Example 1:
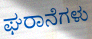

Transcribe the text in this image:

ಘರಾನೆಗಳು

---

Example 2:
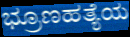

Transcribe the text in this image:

ಭ್ರೂಣಹತ್ಯೆಯ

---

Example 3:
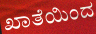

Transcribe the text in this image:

ಖಾತೆಯಿಂದ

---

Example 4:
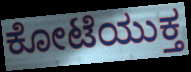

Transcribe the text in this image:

ಕೋಟೆಯುಕ್ತ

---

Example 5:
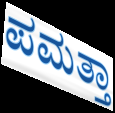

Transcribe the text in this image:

ಪಮತ್ತಾ